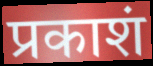
प्रकाशं